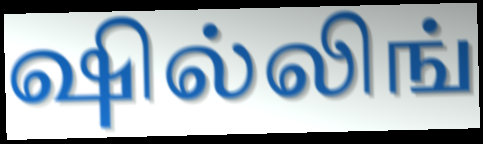
ஷில்லிங்